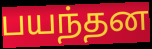
பயந்தன